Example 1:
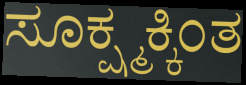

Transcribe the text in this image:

ಸೂಕ್ಷ್ಮಕ್ಕಿಂತ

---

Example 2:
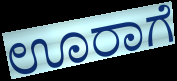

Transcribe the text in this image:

ಊರಾಗೆ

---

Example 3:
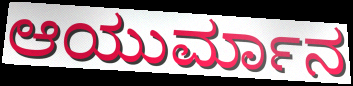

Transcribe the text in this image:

ಆಯುರ್ಮಾನ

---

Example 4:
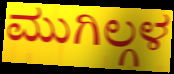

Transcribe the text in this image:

ಮುಗಿಲ್ಗಳ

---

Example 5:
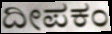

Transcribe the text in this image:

ದೀಪಕಂ